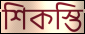
শিকস্তি